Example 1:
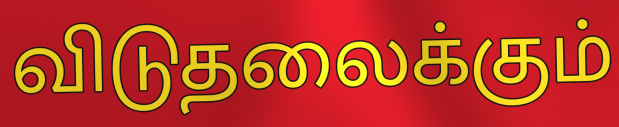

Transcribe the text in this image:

விடுதலைக்கும்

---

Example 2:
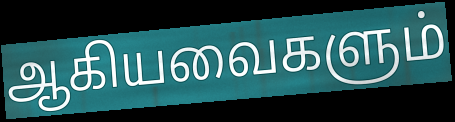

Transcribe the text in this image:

ஆகியவைகளும்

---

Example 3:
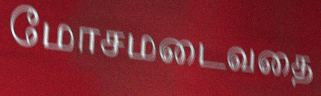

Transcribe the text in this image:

மோசமடைவதை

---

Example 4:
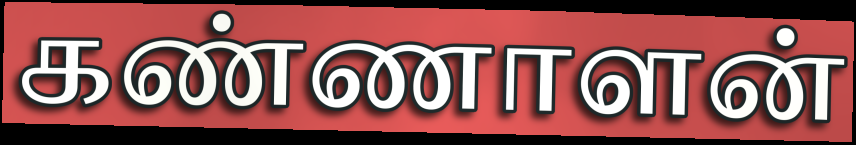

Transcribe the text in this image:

கண்ணாளன்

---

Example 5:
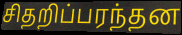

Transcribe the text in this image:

சிதறிப்பரந்தன